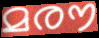
മരൗ